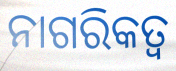
ନାଗରିକତ୍ୱ